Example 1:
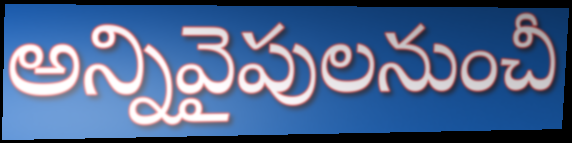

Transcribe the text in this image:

అన్నివైపులనుంచీ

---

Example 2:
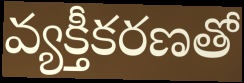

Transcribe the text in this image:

వ్యక్తీకరణతో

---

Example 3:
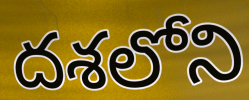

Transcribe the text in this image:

దశలోని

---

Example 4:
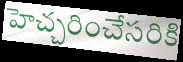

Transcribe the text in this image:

హెచ్చరించేసరికి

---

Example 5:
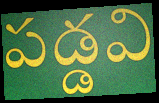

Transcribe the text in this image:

పడ్డవి